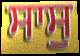
ਸਾਸੁ